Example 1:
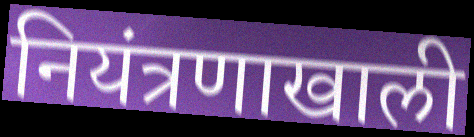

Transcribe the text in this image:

नियंत्रणाखाली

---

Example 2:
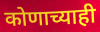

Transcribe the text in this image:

कोणाच्याही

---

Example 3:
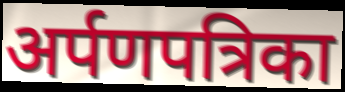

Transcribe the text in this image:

अर्पणपत्रिका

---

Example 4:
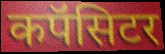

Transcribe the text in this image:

कपॅसिटर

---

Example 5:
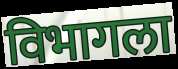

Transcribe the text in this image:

विभागला